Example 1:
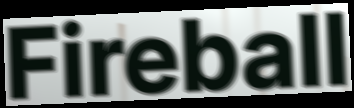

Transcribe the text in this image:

Fireball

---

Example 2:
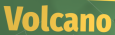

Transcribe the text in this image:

Volcano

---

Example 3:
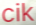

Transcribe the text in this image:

cik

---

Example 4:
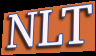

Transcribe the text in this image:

NLT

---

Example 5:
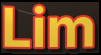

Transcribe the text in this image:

Lim